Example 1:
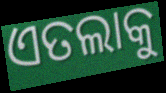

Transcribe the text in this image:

ଏତଲାକୁ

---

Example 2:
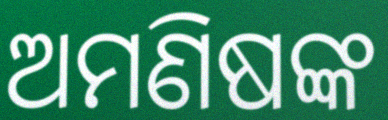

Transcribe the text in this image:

ଅମଣିଷଙ୍କ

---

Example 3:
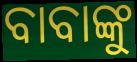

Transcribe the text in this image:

ବାବାଙ୍କୁ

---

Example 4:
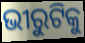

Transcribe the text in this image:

ଭୀରୁଟିକୁ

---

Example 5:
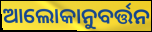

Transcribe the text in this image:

ଆଲୋକାନୁବର୍ତ୍ତନ